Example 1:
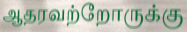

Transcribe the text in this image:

ஆதரவற்றோருக்கு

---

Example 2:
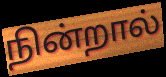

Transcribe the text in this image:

நின்றால்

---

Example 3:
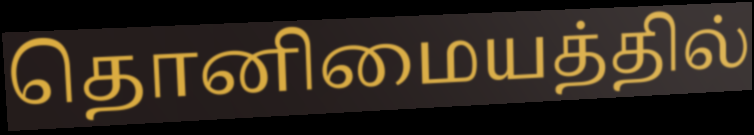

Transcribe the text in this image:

தொனிமையத்தில்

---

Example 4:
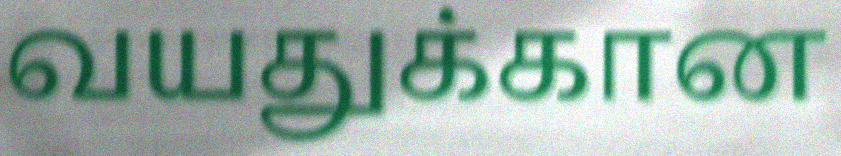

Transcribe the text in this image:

வயதுக்கான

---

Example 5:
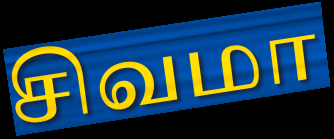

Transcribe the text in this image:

சிவமா